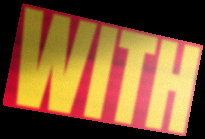
WITH